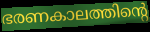
ഭരണകാലത്തിന്റെ